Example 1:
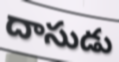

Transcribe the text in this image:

దాసుడు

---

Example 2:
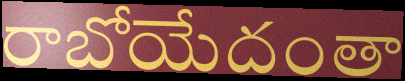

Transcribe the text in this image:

రాబోయేదంతా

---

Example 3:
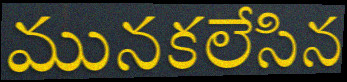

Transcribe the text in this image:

మునకలేసిన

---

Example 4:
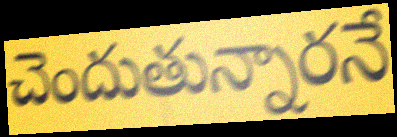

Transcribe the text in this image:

చెందుతున్నారనే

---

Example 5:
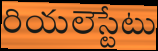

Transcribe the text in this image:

రియలెస్టేటు